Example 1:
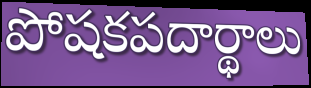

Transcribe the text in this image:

పోషకపదార్థాలు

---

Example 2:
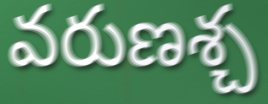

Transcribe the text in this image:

వరుణశ్చ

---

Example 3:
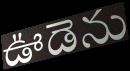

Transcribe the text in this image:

ఊడెను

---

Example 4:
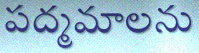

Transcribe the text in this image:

పద్మమాలను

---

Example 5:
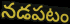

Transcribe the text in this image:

నడపటం